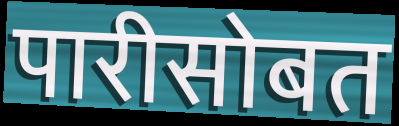
पारीसोबत